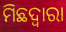
ମିଛଦ୍ଵାରା